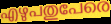
എഴുപതുപേരെ